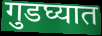
गुडघ्यात